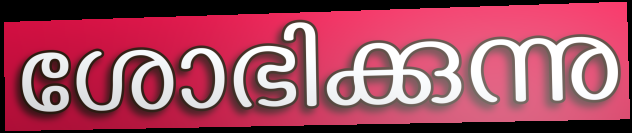
ശോഭിക്കുന്നു